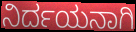
ನಿರ್ದಯನಾಗಿ